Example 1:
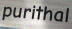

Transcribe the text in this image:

purithal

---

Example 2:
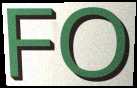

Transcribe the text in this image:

FO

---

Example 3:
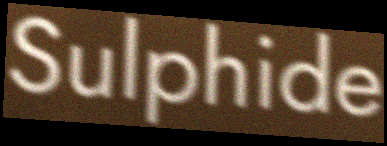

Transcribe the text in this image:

Sulphide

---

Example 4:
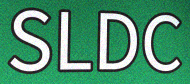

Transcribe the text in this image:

SLDC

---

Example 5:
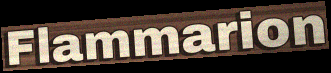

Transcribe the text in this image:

Flammarion